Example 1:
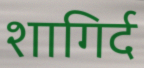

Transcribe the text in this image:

शागिर्द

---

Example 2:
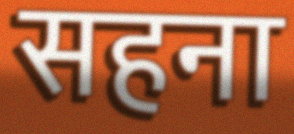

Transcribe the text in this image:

सहना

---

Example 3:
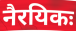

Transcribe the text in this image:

नैरयिकः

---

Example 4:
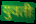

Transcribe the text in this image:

युवतीः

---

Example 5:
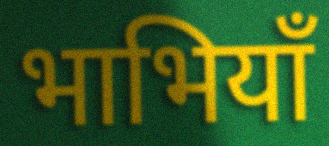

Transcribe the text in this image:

भाभियाँ